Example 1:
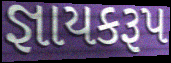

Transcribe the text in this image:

જ્ઞાયકરૂપ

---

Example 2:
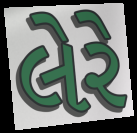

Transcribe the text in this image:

લેરે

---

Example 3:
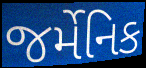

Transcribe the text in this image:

જર્મેનિક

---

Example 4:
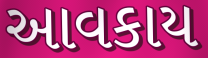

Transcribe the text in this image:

આવકાય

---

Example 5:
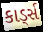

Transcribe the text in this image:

કાર્ડ્સ